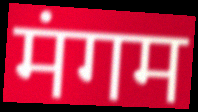
मंगम